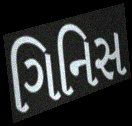
ગિનિસ